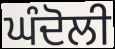
ਘੰਦੋਲੀ